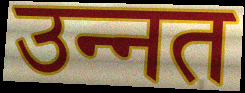
उन्‍नत